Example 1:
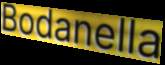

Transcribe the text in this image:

Bodanella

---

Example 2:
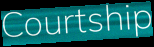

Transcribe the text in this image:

Courtship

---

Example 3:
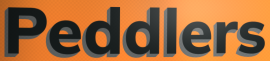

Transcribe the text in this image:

Peddlers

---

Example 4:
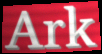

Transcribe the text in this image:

Ark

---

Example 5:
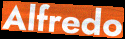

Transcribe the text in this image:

Alfredo